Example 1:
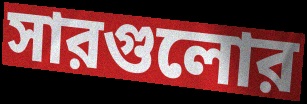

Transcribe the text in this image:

সারগুলোর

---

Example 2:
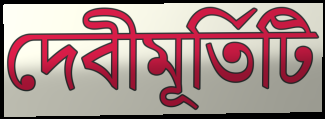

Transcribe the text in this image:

দেবীমূর্তিটি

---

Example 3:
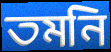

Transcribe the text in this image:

তমনি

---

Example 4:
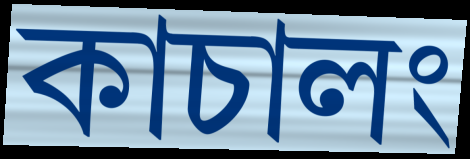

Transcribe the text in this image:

কাচালং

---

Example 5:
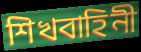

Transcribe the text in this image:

শিখবাহিনী